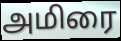
அமிரை